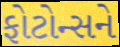
ફોટોન્સને